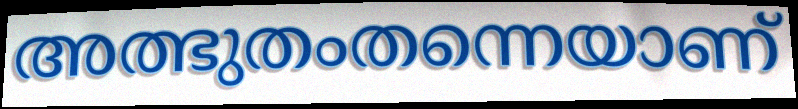
അത്ഭുതംതന്നെയാണ്